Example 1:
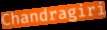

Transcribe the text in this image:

Chandragiri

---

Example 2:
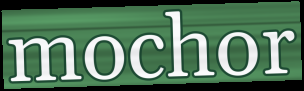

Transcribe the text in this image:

mochor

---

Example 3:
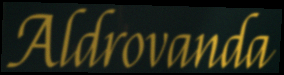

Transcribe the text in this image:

Aldrovanda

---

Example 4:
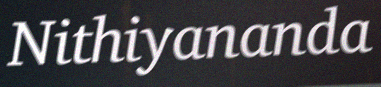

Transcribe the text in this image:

Nithiyananda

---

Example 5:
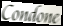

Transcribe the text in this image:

Condone